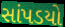
સાંપડયો